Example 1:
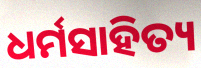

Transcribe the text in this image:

ଧର୍ମସାହିତ୍ୟ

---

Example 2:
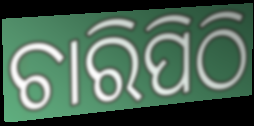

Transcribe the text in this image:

ଚାରିପିଠି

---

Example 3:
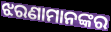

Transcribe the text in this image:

ଝରଣାମାନଙ୍କର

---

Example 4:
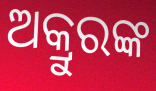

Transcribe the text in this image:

ଅକ୍ରୁରଙ୍କ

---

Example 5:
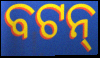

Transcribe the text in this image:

ବଟନ୍